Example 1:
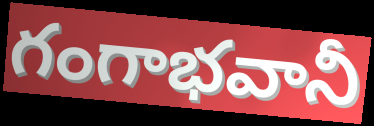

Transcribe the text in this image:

గంగాభవానీ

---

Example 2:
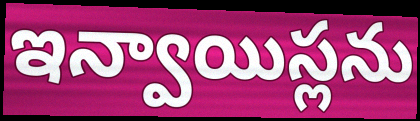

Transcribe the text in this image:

ఇన్వాయిస్లను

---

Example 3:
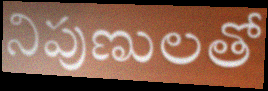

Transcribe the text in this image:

నిపుణులతో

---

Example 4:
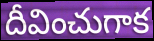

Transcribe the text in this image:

దీవించుగాక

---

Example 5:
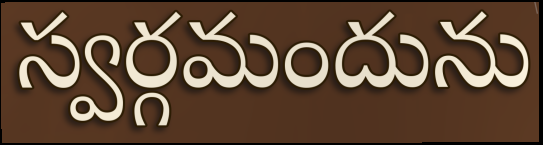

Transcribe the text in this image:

స్వర్గమందును